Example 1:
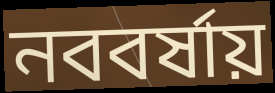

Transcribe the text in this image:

নববর্ষায়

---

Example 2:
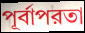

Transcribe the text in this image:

পূর্বাপরতা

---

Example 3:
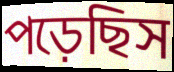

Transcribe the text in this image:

পড়েছিস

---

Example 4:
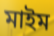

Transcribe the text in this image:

মাইম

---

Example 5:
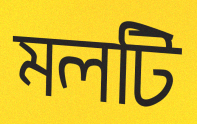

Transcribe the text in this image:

মলটি